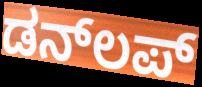
ಡನ್‌ಲಪ್